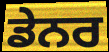
ਡੇਨਰ